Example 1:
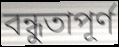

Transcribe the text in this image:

বন্ধুতাপূর্ণ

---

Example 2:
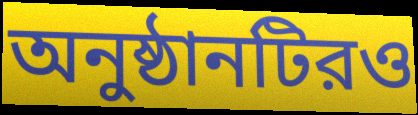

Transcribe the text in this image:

অনুষ্ঠানটিরও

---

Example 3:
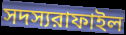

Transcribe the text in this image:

সদস্যরাফাইল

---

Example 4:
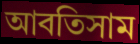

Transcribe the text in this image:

আবতিসাম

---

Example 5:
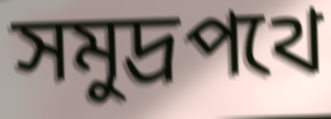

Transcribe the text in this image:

সমুদ্রপথে